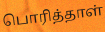
பொரித்தாள்